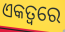
ଏକତ୍ୱରେ